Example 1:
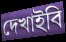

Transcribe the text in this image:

দেখাইবি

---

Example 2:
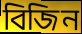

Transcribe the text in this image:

বিজিন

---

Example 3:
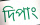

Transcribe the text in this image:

দিপাং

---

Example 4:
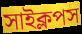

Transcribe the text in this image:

সাইক্লপস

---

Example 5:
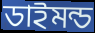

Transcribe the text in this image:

ডাইমন্ড